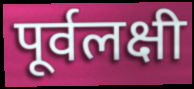
पूर्वलक्षी